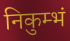
निकुम्भं